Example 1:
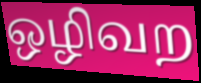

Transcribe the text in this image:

ஒழிவற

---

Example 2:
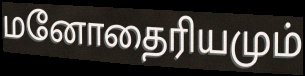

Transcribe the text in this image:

மனோதைரியமும்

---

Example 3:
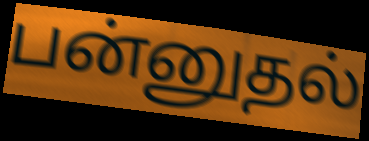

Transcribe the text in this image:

பன்னுதல்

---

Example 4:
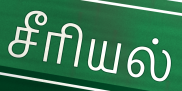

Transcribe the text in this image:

சீரியல்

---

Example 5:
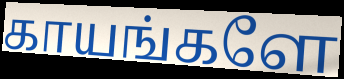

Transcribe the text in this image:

காயங்களே